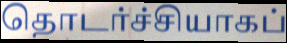
தொடர்ச்சியாகப்